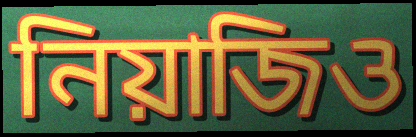
নিয়াজিও